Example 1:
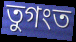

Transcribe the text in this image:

তুগংত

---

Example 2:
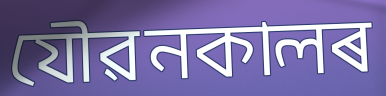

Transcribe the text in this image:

যৌৱনকালৰ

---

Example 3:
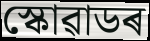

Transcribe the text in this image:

স্কোৱাডৰ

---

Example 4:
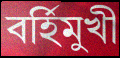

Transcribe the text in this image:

বৰ্হিমুখী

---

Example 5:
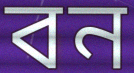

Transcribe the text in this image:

বন